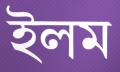
ইলম